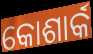
କୋଶାର୍କ